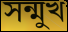
সন্মুখ